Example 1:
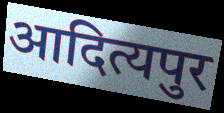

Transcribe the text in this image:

आदित्यपुर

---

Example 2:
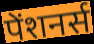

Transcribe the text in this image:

पेंशनर्स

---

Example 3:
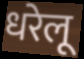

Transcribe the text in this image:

धरेलू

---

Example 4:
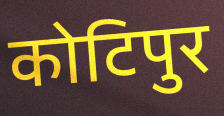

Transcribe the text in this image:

कोटिपुर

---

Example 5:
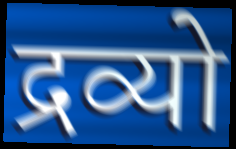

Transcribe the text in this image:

द्रव्यो